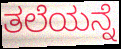
ತಲೆಯನ್ನೆ